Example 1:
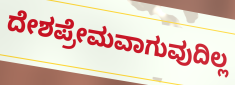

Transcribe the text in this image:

ದೇಶಪ್ರೇಮವಾಗುವುದಿಲ್ಲ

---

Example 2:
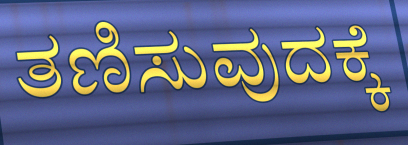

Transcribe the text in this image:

ತಣಿಸುವುದಕ್ಕೆ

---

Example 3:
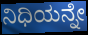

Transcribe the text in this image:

ನಿಧಿಯನ್ನೇ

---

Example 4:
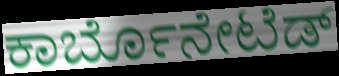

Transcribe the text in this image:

ಕಾರ್ಬೊನೇಟೆಡ್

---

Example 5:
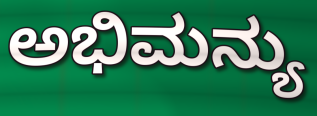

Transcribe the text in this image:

ಅಭಿಮನ್ಯು